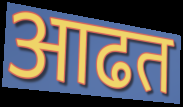
आढत